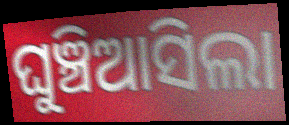
ଘୁଞ୍ଚିଆସିଲା